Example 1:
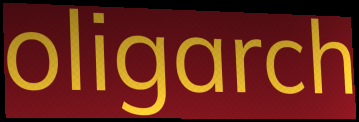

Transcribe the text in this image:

oligarch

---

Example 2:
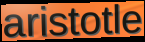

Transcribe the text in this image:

aristotle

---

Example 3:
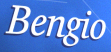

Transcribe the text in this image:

Bengio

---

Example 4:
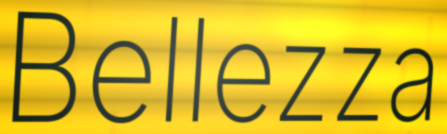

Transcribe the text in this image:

Bellezza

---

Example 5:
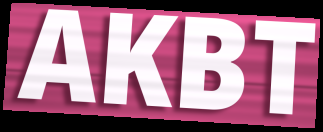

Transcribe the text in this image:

AKBT